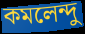
কমলেন্দু